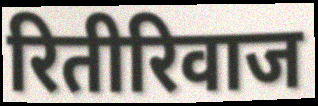
रितीरिवाज